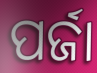
ପର୍ଜା